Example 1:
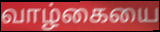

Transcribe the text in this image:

வாழ்கையை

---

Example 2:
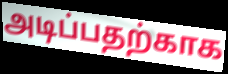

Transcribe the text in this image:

அடிப்பதற்காக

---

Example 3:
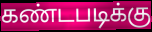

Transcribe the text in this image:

கண்டபடிக்கு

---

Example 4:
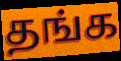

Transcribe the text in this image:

தங்க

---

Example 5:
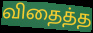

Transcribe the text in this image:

விதைத்த